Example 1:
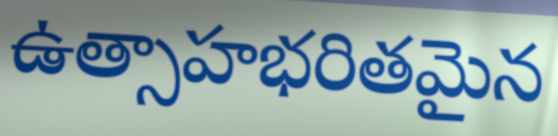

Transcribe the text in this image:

ఉత్సాహభరితమైన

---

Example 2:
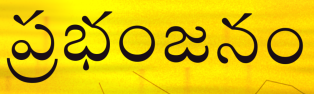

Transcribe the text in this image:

ప్రభంజనం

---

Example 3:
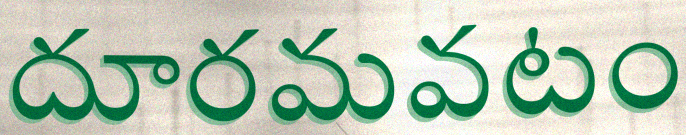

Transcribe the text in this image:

దూరమవటం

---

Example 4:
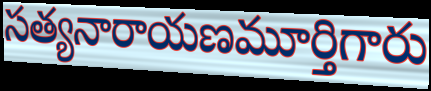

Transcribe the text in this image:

సత్యనారాయణమూర్తిగారు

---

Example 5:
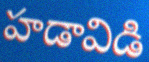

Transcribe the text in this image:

హడావిడి